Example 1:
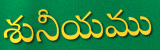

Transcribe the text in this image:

శునీయము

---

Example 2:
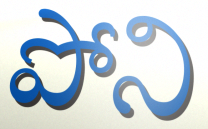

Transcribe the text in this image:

పోని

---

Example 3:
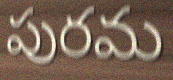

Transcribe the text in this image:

పురమ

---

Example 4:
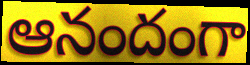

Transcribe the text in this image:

ఆనందంగా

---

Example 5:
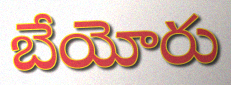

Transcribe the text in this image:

బేయోరు